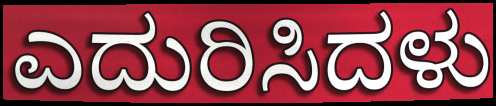
ಎದುರಿಸಿದಳು